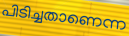
പിടിച്ചതാണെന്ന